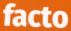
facto